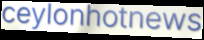
ceylonhotnews